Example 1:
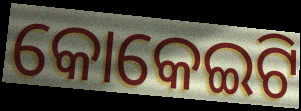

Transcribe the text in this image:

କୋକେଇଟି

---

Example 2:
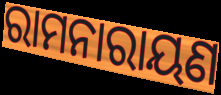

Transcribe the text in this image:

ରାମନାରାୟଣ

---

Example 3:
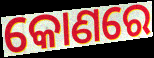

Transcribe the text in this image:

କୋଣରେ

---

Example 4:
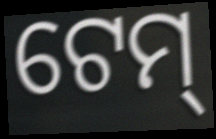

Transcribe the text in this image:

ଟେମ୍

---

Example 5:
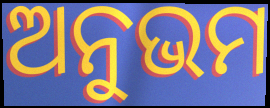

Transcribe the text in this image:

ଅନୁଭମ